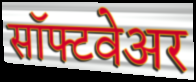
सॉफ्टवेअर